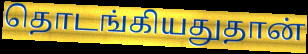
தொடங்கியதுதான்